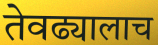
तेवढ्यालाच